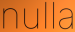
nulla